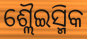
ଶ୍ଲୈଇସ୍ମିକ